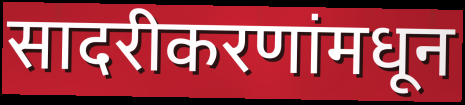
सादरीकरणांमधून